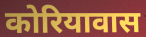
कोरियावास